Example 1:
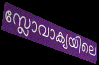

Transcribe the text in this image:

സ്ലോവാക്യയിലെ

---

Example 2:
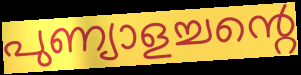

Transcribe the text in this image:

പുണ്യാളച്ചന്റെ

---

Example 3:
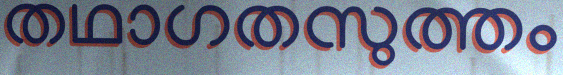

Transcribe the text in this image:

തഥാഗതസുത്തം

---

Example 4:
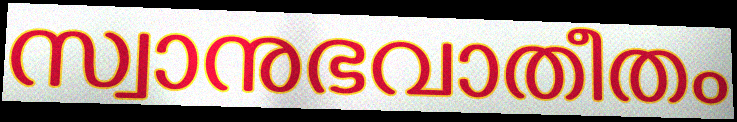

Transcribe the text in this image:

സ്വാനുഭവാതീതം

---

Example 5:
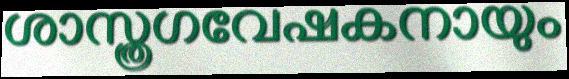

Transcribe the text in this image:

ശാസ്ത്രഗവേഷകനായും